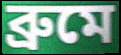
ব্রুমে